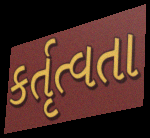
કર્તૃત્વતા